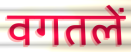
वगतलें